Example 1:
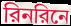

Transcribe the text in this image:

রিনরিনে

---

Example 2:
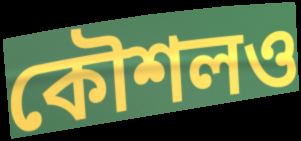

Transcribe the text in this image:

কৌশলও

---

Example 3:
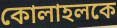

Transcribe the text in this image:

কোলাহলকে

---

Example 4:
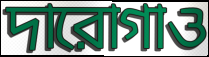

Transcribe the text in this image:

দারোগাও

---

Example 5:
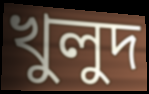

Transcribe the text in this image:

খুলুদ